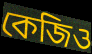
কেজিও